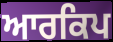
ਆਰਕਿਪ